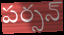
పర్సన్